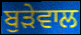
ਬੁੜੇਵਾਲ